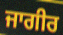
ਜਾਗੀਰ